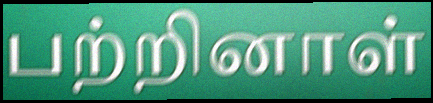
பற்றினாள்